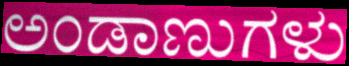
ಅಂಡಾಣುಗಳು